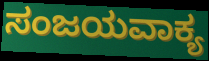
ಸಂಜಯವಾಕ್ಯ